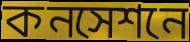
কনসেশনে